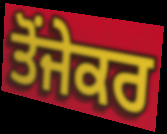
ਤੋਂਜੇਕਰ